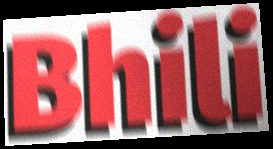
Bhili